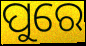
ପୁରେ